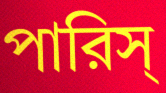
পারিস্